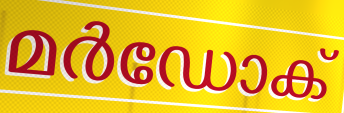
മർഡോക്